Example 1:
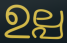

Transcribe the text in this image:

ഉല്പ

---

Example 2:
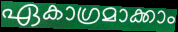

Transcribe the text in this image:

ഏകാഗ്രമാക്കാം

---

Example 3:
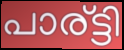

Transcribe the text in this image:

പാര്ട്ടി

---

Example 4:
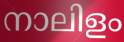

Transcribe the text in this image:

നാലിളം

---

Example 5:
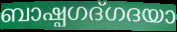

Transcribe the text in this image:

ബാഷ്പഗദ്ഗദയാ